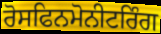
ਰੋਸਫਿਨਮੋਨੀਟਰਿੰਗ